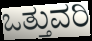
ಒತ್ತುವರಿ